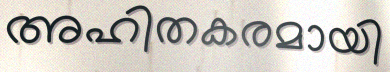
അഹിതകരമായി